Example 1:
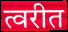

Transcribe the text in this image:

त्वरीत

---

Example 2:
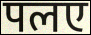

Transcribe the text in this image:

पलए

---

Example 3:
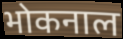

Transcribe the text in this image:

भोकनाल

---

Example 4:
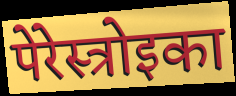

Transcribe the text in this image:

पेरेस्त्रोइका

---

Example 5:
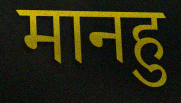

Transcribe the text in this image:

मानहु